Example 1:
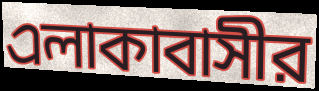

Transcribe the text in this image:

এলাকাবাসীর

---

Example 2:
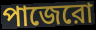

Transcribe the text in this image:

পাজেরো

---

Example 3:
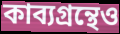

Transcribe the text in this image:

কাব্যগ্রন্থেও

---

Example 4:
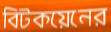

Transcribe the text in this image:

বিটকয়েনের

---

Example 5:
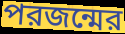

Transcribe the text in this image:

পরজন্মের